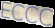
ECCC